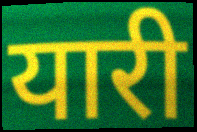
यारी